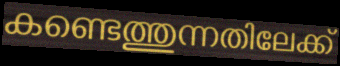
കണ്ടെത്തുന്നതിലേക്ക്